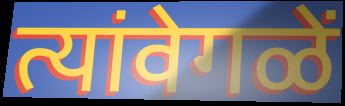
त्यांवेगळें